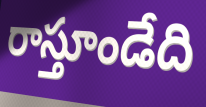
రాస్తూండేది